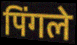
पिंगले